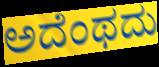
ಅದೆಂಥದು